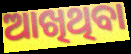
ଆଖିଥିବା